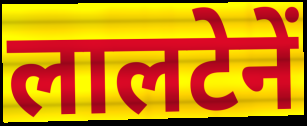
लालटेनें